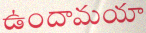
ఉందామయా